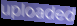
uploaded